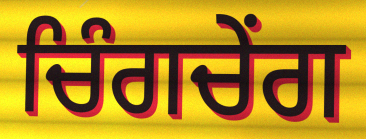
ਚਿੰਗਚੇਂਗ